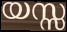
യസ്സ